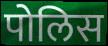
पोलिस